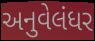
અનુવેલંધર